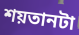
শয়তানটা